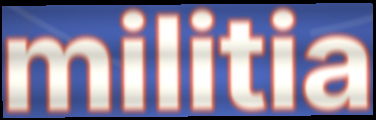
militia